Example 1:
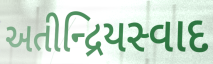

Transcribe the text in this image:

અતીન્દ્રિયસ્વાદ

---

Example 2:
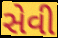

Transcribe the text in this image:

સેવી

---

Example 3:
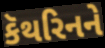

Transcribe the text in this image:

કૅથરિનને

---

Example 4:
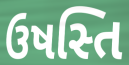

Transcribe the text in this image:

ઉષસ્તિ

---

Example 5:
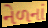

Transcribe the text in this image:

નેળનાં